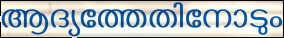
ആദ്യത്തേതിനോടും